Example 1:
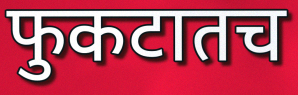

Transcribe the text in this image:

फुकटातच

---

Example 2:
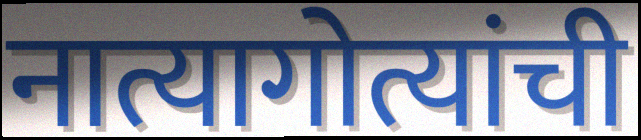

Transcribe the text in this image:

नात्यागोत्यांची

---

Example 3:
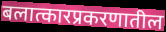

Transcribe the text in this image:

बलात्कारप्रकरणातील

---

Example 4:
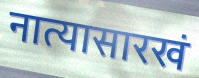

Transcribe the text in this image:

नात्यासारखं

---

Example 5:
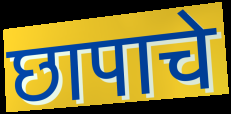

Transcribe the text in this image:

छापाचे